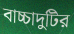
বাচ্চাদুটির